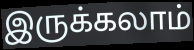
இருக்கலாம்